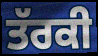
ਤੱਰਕੀ